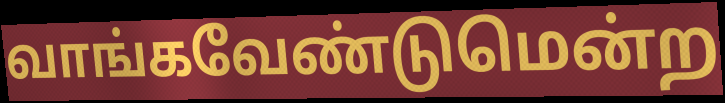
வாங்கவேண்டுமென்ற